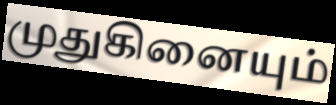
முதுகினையும்